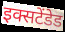
इक्सटेंडेड